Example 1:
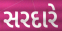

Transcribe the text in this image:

સરદારે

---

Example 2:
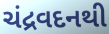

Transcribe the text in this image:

ચંદ્રવદનથી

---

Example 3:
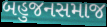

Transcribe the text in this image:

બહુજનસમાજ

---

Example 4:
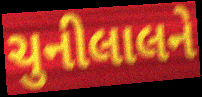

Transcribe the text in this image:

ચુનીલાલને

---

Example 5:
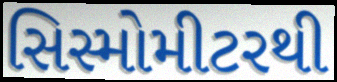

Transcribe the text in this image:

સિસ્મોમીટરથી